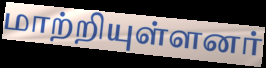
மாற்றியுள்ளனர்